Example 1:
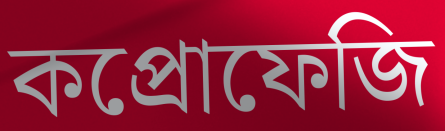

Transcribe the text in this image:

কপ্রোফেজি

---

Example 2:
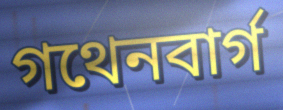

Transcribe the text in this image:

গথেনবার্গ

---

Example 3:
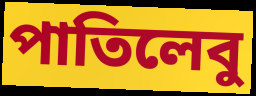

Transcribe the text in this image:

পাতিলেবু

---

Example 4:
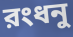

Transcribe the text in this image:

রংধনু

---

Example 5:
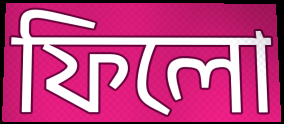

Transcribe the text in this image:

ফিলো